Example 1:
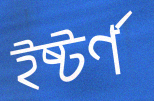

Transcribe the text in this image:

ইষ্টৰ্ণ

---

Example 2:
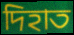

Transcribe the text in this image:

দিহাত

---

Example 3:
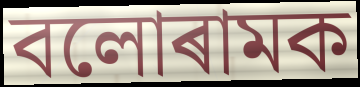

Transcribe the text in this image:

বলোৰামক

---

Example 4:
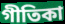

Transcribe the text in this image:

গীতিকা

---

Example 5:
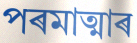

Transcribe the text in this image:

পৰমাত্মাৰ